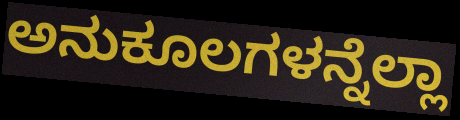
ಅನುಕೂಲಗಳನ್ನೆಲ್ಲಾ